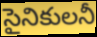
సైనికులనీ